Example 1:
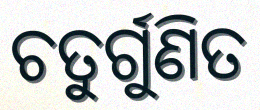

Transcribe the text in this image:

ଚତୁର୍ଗୁଣିତ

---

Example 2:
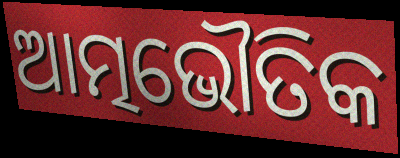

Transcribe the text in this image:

ଆତ୍ମଭୌତିକ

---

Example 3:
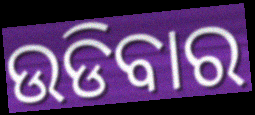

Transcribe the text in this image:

ଉଡିବାର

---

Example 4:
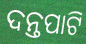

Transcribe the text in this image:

ଦନ୍ତପାଟି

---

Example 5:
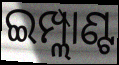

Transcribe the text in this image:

ଇମ୍ପ୍ଲାଣ୍ଟ